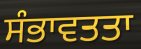
ਸੰਭਾਵਤਤਾ